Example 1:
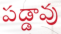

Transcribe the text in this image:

పడ్డావు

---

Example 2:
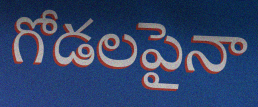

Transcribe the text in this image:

గోడలపైనా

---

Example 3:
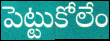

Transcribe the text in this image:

పెట్టుకోలేం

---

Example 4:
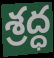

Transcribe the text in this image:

శ్రద్ధ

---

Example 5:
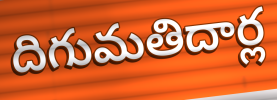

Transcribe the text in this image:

దిగుమతిదార్ల